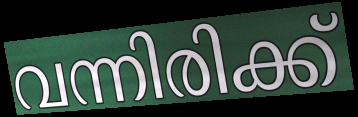
വന്നിരിക്ക്